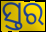
ସ୍ତର